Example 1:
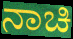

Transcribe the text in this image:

ನಾಚಿ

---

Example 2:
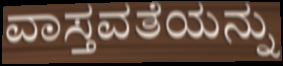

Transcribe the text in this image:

ವಾಸ್ತವತೆಯನ್ನು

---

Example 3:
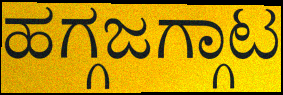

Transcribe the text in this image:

ಹಗ್ಗಜಗ್ಗಾಟ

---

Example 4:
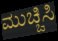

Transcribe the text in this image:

ಮುಚ್ಚಿಸಿ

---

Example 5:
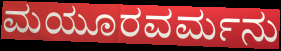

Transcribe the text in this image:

ಮಯೂರವರ್ಮನು